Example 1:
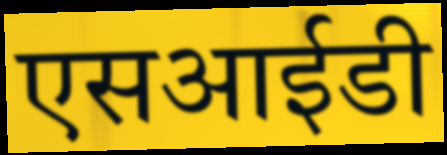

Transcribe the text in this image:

एसआईडी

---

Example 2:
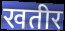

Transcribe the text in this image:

खतीर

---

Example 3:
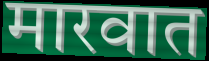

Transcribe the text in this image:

मारवात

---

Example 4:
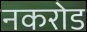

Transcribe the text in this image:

नकरोड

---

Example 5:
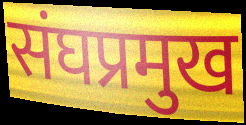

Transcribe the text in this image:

संघप्रमुख